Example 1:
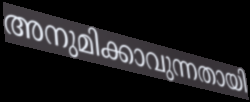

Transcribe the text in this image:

അനുമിക്കാവുന്നതായി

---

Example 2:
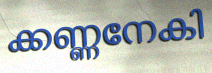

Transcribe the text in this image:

ക്കണ്ണനേകി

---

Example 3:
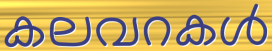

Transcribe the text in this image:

കലവറകൾ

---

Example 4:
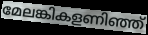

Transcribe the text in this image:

മേലങ്കികളണിഞ്ഞ്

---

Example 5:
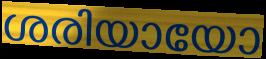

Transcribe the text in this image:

ശരിയായോ